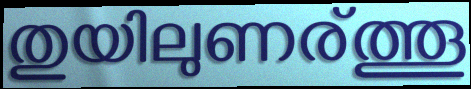
തുയിലുണര്ത്തൂ